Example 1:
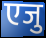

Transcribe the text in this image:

एजु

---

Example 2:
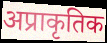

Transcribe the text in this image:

अप्राकृतिक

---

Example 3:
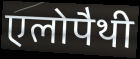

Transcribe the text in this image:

एलोपैथी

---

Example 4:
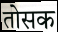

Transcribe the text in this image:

तोसक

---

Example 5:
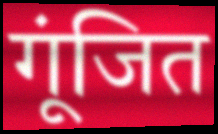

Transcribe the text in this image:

गूंजित